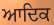
ਆਦਿਕ